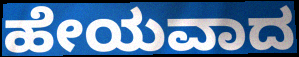
ಹೇಯವಾದ